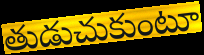
తుడుచుకుంటూ